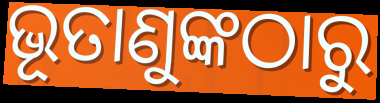
ଭୂତାଣୁଙ୍କଠାରୁ